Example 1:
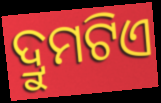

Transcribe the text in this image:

ଦ୍ରୁମଟିଏ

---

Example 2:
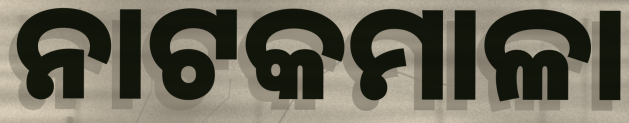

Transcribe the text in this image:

ନାଟକମାଳା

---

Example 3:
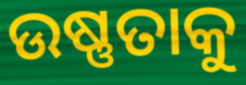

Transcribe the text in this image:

ଉଷ୍ଣତାକୁ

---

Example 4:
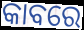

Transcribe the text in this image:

କାବରେ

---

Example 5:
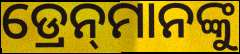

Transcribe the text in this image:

ଡ୍ରେନ୍‌ମାନଙ୍କୁ